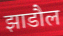
झाडौल